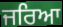
ਜਰਿਆ